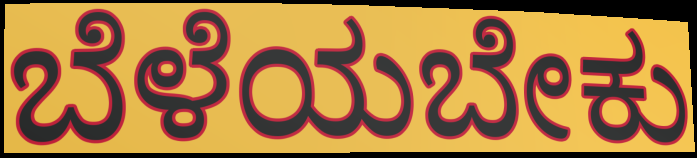
ಬೆಳೆಯಬೇಕು